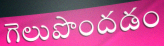
గెలుపొందడం